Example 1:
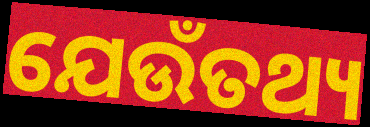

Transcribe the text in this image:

ଯେଉଁତଥ୍ୟ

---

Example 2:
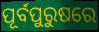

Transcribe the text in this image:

ପୂର୍ବପୁରୁଷରେ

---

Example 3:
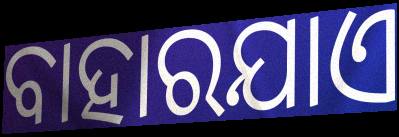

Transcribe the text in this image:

ବାହାରଯାଏ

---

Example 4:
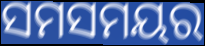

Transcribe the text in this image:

ସମସମୟର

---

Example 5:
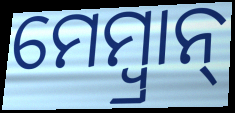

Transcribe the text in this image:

ମେମ୍ବ୍ରାନ୍